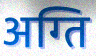
अग्ति